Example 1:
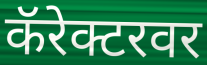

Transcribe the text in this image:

कॅरेक्टरवर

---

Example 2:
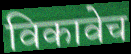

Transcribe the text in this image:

विकावेच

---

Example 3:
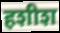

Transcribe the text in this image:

हशीश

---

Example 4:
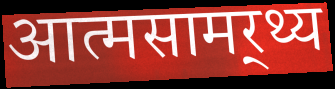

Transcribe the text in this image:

आत्मसामर्थ्य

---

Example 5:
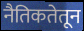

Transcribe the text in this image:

नैतिकतेतून